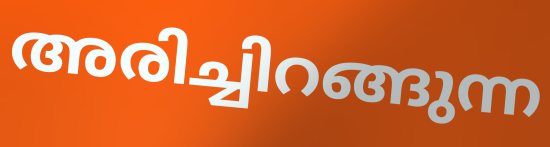
അരിച്ചിറങ്ങുന്ന